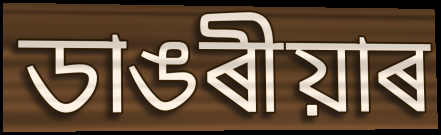
ডাঙৰীয়াৰ